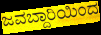
ಜವಬ್ದಾರಿಯಿಂದ